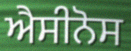
ਐਸੀਨੋਸ